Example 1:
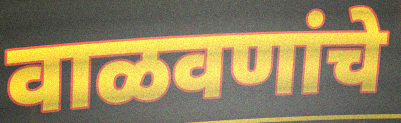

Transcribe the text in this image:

वाळवणांचे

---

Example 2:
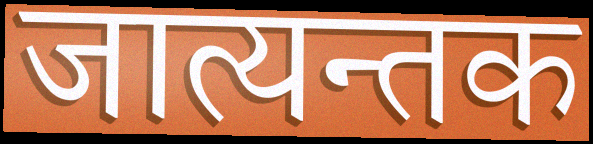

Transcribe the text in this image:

जात्यन्तक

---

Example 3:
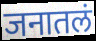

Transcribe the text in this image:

जनातलं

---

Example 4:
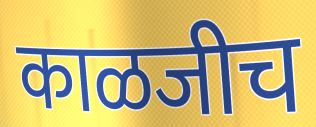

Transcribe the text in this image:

काळजीच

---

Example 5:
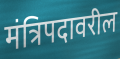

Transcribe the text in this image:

मंत्रिपदावरील